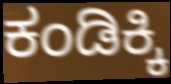
ಕಂಡಿಕ್ಕಿ